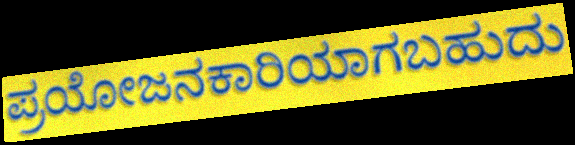
ಪ್ರಯೋಜನಕಾರಿಯಾಗಬಹುದು